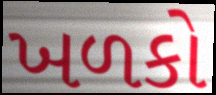
ખળકો